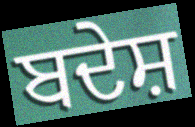
ਬਦੇਸ਼